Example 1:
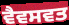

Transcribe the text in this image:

ਵੈਵਸਵਤ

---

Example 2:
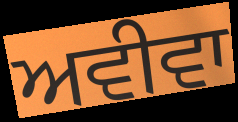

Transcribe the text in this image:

ਅਵੀਵਾ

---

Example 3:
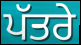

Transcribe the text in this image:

ਪੱਤਰੇ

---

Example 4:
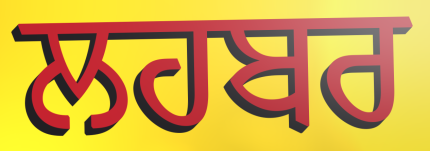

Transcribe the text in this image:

ਲਹਬਰ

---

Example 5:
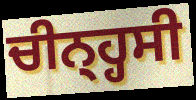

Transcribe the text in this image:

ਚੀਨ੍ਹ੍ਹਸੀ